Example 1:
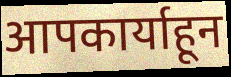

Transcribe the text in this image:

आपकार्याहून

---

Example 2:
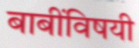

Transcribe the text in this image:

बाबींविषयी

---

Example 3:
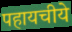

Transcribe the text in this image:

पहायचीये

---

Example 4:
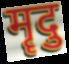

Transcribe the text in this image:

मॄदु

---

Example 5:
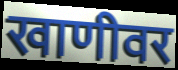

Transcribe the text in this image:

खाणीवर